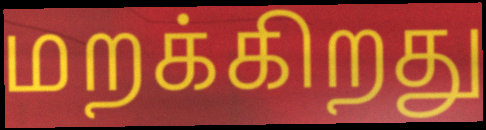
மறக்கிறது